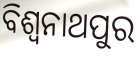
ବିଶ୍ଵନାଥପୁର